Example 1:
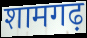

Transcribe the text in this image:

शामगढ़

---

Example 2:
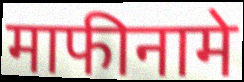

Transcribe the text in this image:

माफीनामे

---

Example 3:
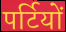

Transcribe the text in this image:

पर्टियों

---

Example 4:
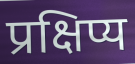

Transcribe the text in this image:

प्रक्षिप्य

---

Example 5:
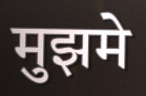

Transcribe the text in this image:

मुझमे